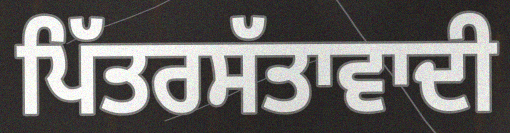
ਪਿੱਤਰਸੱਤਾਵਾਦੀ